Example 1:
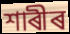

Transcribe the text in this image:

শাৰীৰ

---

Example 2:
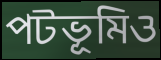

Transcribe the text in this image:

পটভূমিও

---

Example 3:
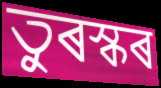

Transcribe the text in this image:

তুৰস্কৰ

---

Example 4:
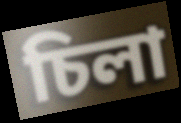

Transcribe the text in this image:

চিলা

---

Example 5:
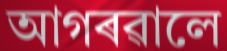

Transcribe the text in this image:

আগৰৱালে